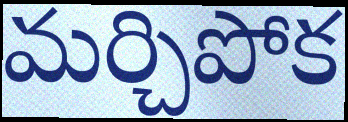
మర్చిపోక